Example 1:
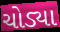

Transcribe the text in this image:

ચોડ્યા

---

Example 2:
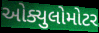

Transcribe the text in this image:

ઓક્યુલોમોટર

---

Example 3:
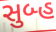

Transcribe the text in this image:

સુબ્હ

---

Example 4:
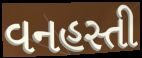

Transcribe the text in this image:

વનહસ્તી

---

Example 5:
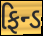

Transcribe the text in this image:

ફિન્ડ